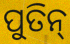
ପୁତିନ୍